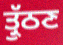
ਤ੍ਰੁੱਠਣ